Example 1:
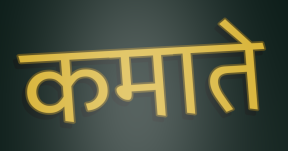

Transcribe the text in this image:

कमाते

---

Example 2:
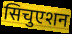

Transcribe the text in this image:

सिचुएशन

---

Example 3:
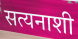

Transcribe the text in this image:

सत्यनाशी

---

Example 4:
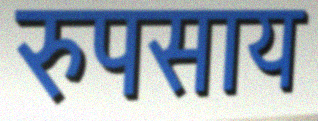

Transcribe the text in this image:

रुपसाय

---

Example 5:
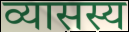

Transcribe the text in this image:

व्यासस्य